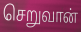
செறுவான்